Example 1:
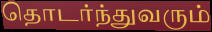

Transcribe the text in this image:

தொடர்ந்துவரும்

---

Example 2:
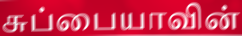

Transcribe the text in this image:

சுப்பையாவின்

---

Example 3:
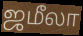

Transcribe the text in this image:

ஜமீலா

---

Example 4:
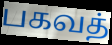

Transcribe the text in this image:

பகவத்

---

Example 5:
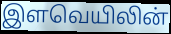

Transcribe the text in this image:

இளவெயிலின்